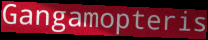
Gangamopteris